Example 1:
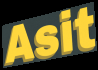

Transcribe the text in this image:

Asit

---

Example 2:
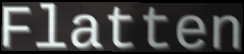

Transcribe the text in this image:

Flatten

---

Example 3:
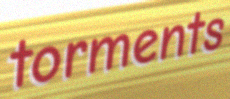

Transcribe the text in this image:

torments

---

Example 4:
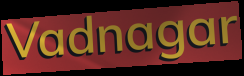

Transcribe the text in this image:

Vadnagar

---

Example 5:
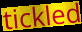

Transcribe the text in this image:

tickled